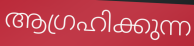
ആഗ്രഹിക്കുന്ന